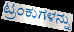
ಟ್ರಂಕುಗಳನ್ನು